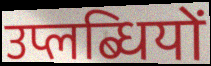
उप्लब्धियों